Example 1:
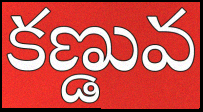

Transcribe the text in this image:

కణ్డువ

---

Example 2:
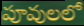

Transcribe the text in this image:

పూవులలో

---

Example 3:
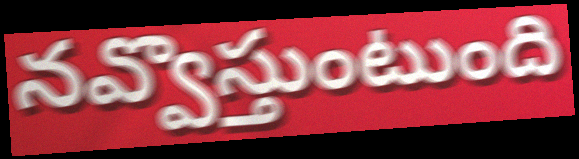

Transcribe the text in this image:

నవ్వొస్తుంటుంది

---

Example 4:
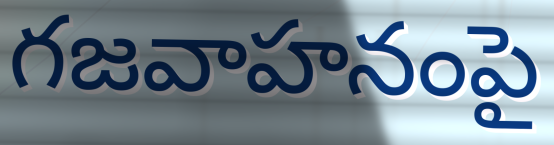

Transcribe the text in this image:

గజవాహనంపై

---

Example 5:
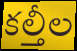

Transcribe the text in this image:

కల్తీల